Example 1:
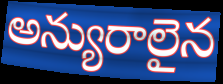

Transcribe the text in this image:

అన్యురాలైన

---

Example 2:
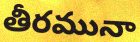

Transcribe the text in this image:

తీరమునా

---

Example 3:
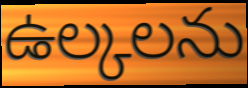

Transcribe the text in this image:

ఉల్కలను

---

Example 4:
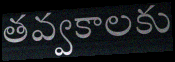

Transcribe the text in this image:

తవ్వకాలకు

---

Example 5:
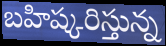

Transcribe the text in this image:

బహిష్కరిస్తున్న